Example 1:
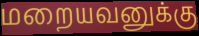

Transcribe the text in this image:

மறையவனுக்கு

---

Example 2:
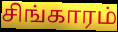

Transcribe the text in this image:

சிங்காரம்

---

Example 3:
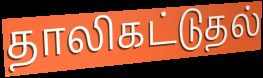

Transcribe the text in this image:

தாலிகட்டுதல்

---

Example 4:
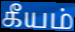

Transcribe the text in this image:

கீயம்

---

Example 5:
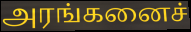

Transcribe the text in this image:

அரங்கனைச்